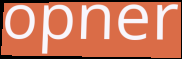
opner